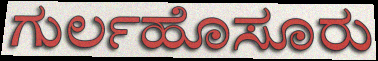
ಗುರ್ಲಹೊಸೂರು